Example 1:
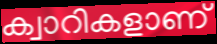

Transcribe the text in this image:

ക്വാറികളാണ്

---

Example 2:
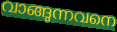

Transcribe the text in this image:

വാങ്ങുന്നവനെ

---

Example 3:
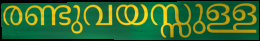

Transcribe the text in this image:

രണ്ടുവയസ്സുള്ള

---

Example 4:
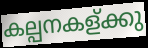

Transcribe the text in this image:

കല്പനകള്ക്കു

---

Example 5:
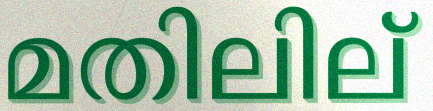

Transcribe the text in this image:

മതിലില്